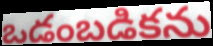
ఒడంబడికను